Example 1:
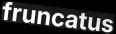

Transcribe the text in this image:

fruncatus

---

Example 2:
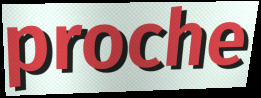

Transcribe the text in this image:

proche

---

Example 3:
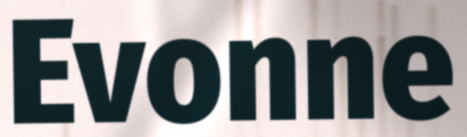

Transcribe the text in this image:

Evonne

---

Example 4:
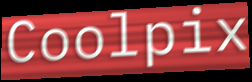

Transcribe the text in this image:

Coolpix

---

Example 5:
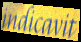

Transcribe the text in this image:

indicavit